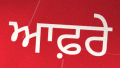
ਆਫ਼ਰੇ